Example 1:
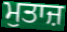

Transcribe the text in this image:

ਮੁਤਾਜ਼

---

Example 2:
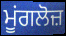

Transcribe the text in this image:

ਮੂਂਗਲੋਜ਼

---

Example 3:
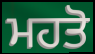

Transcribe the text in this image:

ਮਹਤੋ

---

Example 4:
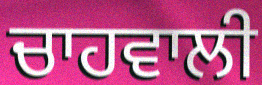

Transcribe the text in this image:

ਚਾਹਵਾਲੀ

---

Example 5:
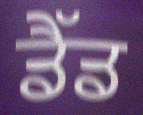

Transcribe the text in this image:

ਡੈੱਡ